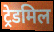
ट्रेडमिल